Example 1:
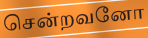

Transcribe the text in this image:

சென்றவனோ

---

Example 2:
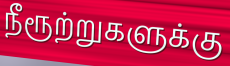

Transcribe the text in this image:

நீரூற்றுகளுக்கு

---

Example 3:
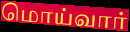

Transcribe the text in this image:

மொய்வார்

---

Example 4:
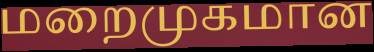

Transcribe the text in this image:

மறைமுகமான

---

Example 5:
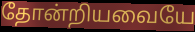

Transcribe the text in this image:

தோன்றியவையே